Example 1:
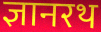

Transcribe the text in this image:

ज्ञानरथ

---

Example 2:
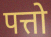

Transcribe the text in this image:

पत्तो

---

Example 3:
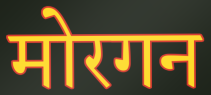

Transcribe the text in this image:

मोरगन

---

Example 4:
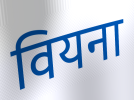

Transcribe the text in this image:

वियना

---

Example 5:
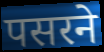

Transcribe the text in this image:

पसरने